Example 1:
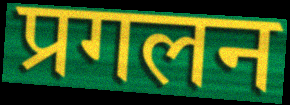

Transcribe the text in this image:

प्रगलन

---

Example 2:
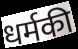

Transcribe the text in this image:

धर्मकी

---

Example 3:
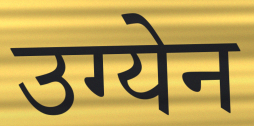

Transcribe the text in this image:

उग्येन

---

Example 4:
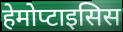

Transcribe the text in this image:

हेमोप्टाइसिस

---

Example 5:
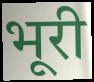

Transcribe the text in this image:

भूरी